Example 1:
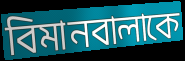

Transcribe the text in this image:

বিমানবালাকে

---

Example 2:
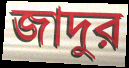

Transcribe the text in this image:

জাদুর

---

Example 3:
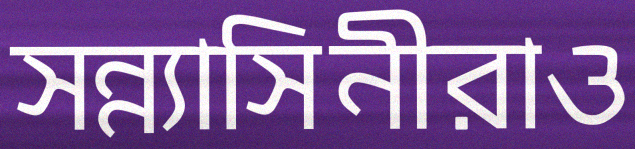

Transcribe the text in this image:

সন্ন্যাসিনীরাও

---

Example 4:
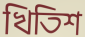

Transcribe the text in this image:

খিতিশ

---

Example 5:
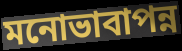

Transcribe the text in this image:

মনোভাবাপন্ন